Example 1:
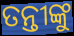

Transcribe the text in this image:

ତନ୍ତୀଙ୍କୁ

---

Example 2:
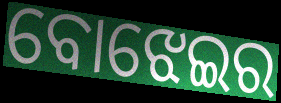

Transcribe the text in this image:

ବୋଝେଇର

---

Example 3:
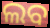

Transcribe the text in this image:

ଲବ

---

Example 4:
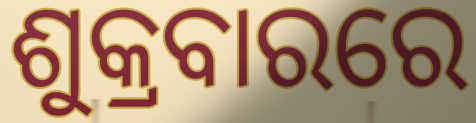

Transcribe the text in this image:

ଶୁକ୍ରବାରରେ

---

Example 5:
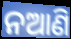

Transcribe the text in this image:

ନଆଣି